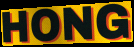
HONG